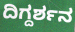
ದಿಗ್ದರ್ಶನ